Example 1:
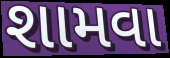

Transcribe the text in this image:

શામવા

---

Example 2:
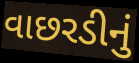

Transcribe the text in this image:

વાછરડીનું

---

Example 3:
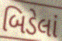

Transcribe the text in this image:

બિડેલાં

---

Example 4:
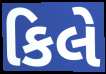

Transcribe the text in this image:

કિલે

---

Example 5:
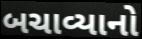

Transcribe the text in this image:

બચાવ્યાનો